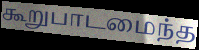
கூறுபாடமைந்த